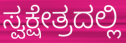
ಸ್ವಕ್ಷೇತ್ರದಲ್ಲಿ